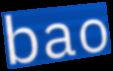
bao